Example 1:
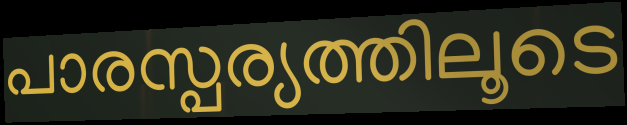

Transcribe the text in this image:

പാരസ്പര്യത്തിലൂടെ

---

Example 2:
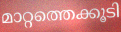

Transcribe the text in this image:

മാറ്റത്തെക്കൂടി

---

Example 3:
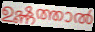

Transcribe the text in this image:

ഉഷ്ണത്താൽ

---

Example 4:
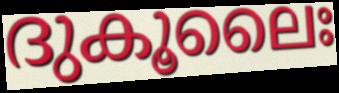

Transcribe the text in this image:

ദുകൂലൈഃ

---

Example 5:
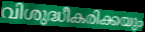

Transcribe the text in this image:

വിശുദ്ധീകരിക്കയും